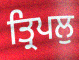
ਤ੍ਰਿਪਲੁ